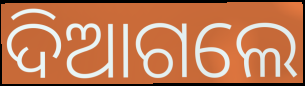
ଦିଆଗଲେ